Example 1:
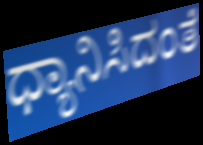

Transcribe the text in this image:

ಧ್ಯಾನಿಸಿದಂತೆ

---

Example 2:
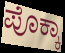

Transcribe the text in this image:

ಪೊಕ್ಕಾ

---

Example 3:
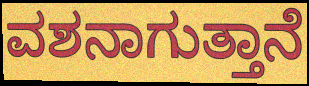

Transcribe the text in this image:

ವಶನಾಗುತ್ತಾನೆ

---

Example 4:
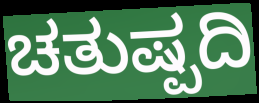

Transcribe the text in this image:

ಚತುಷ್ಪದಿ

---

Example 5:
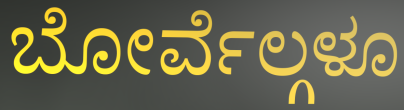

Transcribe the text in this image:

ಬೋರ್ವೆಲ್ಗಳೂ